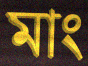
মাং